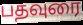
பதவுரை